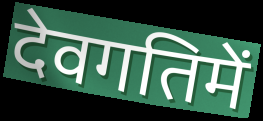
देवगतिमें